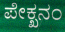
ಪೇಕ್ಖನಂ